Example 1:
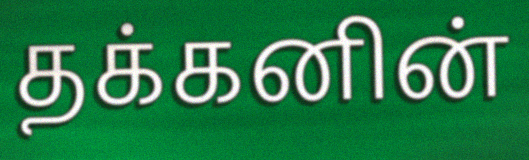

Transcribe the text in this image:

தக்கனின்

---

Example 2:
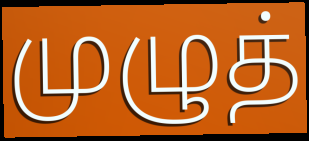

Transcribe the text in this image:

முழுத்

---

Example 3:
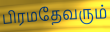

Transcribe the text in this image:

பிரமதேவரும்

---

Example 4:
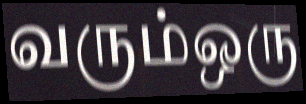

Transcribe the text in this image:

வரும்ஒரு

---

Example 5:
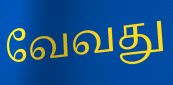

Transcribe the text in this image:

வேவது